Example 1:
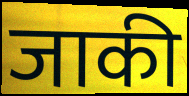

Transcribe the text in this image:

जाकी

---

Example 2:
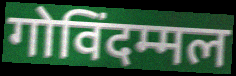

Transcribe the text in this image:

गोविंदम्मल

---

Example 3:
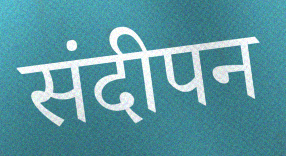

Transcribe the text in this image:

संदीपन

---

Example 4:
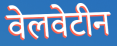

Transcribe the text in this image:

वेलवेटीन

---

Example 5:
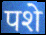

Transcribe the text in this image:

पशे